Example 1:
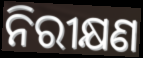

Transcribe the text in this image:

ନିରୀକ୍ଷଣ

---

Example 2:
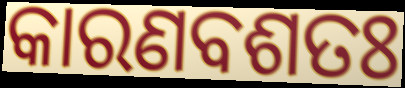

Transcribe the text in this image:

କାରଣବଶତଃ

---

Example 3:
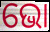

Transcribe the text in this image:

ଭୋ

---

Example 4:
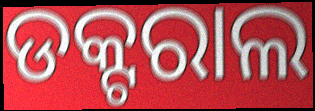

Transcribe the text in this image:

ଡକ୍ଟରାଲ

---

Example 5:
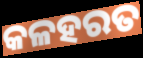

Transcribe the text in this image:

କଳହରତ